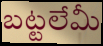
బట్టలేమీ